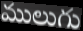
ములుగు